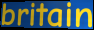
britain